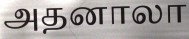
அதனாலா